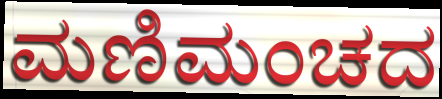
ಮಣಿಮಂಚದ